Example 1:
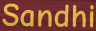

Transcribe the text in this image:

Sandhi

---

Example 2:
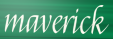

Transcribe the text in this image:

maverick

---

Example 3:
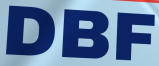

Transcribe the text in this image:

DBF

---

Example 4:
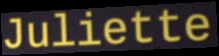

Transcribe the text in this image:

Juliette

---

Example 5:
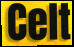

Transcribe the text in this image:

Celt